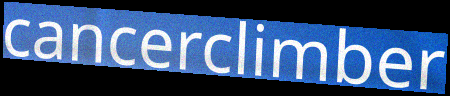
cancerclimber